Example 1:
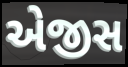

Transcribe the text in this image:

એજીસ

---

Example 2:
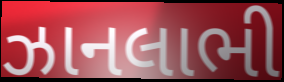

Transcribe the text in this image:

ઝાનલાભી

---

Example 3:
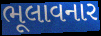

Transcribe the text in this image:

ભૂલાવનાર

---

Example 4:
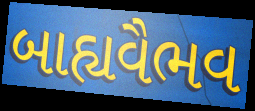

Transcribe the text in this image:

બાહ્યવૈભવ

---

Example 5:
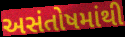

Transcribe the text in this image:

અસંતોષમાંથી